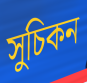
সুচিকন